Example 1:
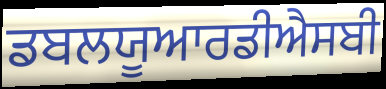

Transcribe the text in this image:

ਡਬਲਯੂਆਰਡੀਐਸਬੀ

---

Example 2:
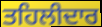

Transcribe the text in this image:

ਤਹਿਲੀਦਾਰ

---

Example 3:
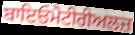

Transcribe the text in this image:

ਬਾਇਓਮੈਟੀਰੀਅਲਜ਼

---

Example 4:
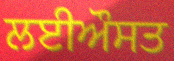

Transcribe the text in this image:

ਲਈਔਸਤ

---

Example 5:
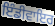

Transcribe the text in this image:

ਇੰਡੀਵਾਇਰ